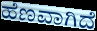
ಹೆಣವಾಗಿದೆ